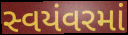
સ્વયંવરમાં